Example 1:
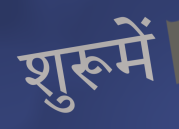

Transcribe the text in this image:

शुरूमें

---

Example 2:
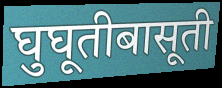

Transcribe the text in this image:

घुघूतीबासूती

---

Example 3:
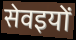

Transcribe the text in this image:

सेवइयों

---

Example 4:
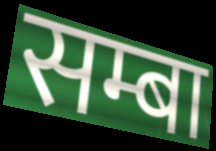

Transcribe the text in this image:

सम्बा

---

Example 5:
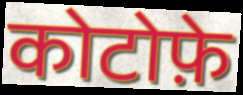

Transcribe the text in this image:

कोटोफ़े